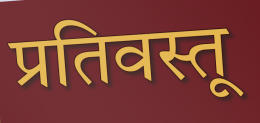
प्रतिवस्तू